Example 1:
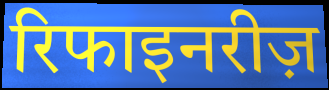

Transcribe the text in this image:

रिफाइनरीज़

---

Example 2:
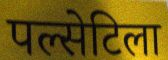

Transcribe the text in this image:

पल्सेटिला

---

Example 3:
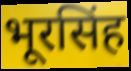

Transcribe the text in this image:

भूरसिंह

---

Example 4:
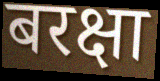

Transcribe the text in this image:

बरक्षा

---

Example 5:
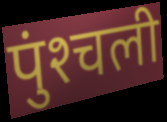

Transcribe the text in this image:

पुंश्चली